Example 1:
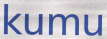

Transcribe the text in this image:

kumu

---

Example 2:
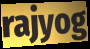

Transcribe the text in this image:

rajyog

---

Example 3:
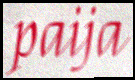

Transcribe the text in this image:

paija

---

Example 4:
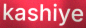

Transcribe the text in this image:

kashiye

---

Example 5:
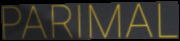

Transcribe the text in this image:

PARIMAL